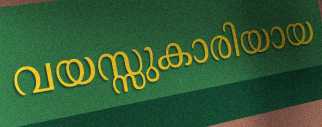
വയസ്സുകാരിയായ